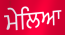
ਮੇਲਿਆ